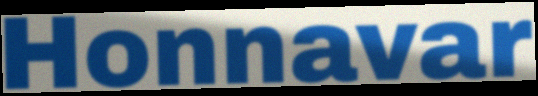
Honnavar